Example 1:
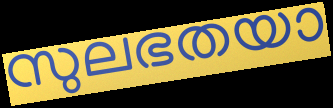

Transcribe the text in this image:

സുലഭതയാ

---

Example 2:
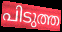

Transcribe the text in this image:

പിടുത്ത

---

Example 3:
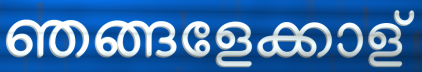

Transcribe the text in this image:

ഞങ്ങളേക്കാള്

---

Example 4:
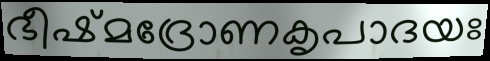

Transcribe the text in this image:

ഭീഷ്മദ്രോണകൃപാദയഃ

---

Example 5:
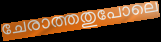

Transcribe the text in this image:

ചേരാത്തതുപോലെ